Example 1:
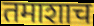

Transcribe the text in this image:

तमाशाच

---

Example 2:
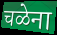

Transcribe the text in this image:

चळेना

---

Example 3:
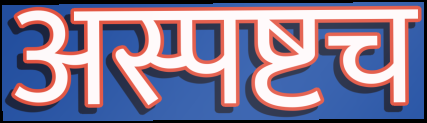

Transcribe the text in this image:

अस्पष्टच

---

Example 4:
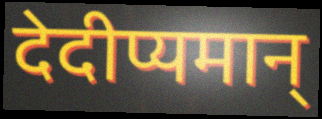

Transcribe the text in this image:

देदीप्यमान्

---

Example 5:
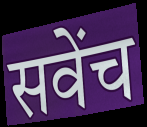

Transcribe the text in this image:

सवेंच